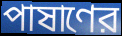
পাষাণের